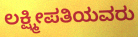
ಲಕ್ಷ್ಮೀಪತಿಯವರು